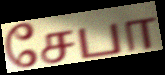
சேபா